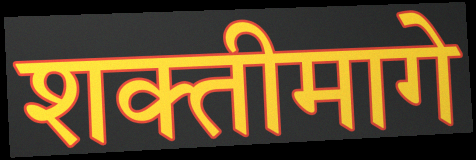
शक्तीमागे